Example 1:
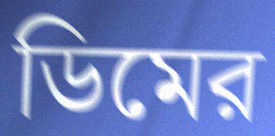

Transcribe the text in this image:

ডিমের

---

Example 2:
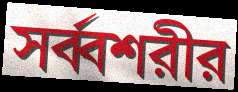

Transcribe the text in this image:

সর্ব্বশরীর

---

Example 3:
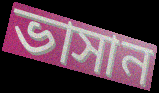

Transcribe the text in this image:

ভাসান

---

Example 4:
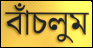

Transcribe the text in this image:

বাঁচলুম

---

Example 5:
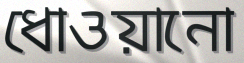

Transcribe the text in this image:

ধোওয়ানো